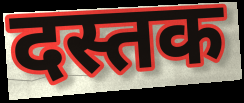
दस्तक